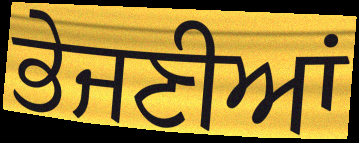
ਭੇਜਣੀਆਂ